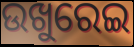
ଉଖୁରେଇ